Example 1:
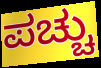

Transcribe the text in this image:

ಪಚ್ಚು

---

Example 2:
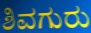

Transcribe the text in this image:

ಶಿವಗುರು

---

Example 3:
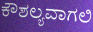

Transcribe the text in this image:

ಕೌಶಲ್ಯವಾಗಲಿ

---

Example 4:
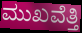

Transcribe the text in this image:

ಮುಖವೆತ್ತಿ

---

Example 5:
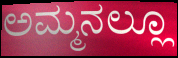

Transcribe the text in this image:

ಅಮ್ಮನಲ್ಲೂ